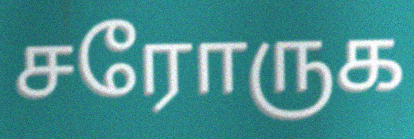
சரோருக